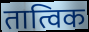
तात्विक